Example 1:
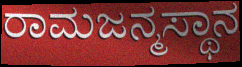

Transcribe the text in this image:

ರಾಮಜನ್ಮಸ್ಥಾನ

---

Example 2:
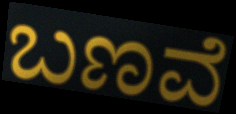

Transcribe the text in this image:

ಬಣವೆ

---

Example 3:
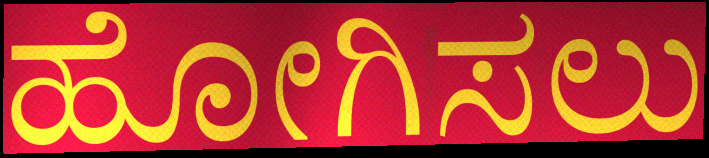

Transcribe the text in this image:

ಹೋಗಿಸಲು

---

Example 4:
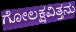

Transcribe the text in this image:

ಗೋಲಕ್ಷವಿತ್ತನು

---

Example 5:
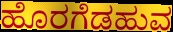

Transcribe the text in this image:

ಹೊರಗೆಡಹುವ